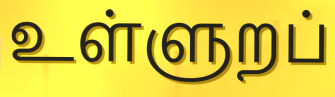
உள்ளுறப்